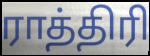
ராத்திரி